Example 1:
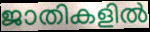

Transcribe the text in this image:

ജാതികളിൽ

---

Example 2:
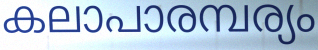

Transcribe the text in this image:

കലാപാരമ്പര്യം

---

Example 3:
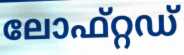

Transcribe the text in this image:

ലോഫ്റ്റഡ്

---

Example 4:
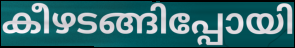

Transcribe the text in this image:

കീഴടങ്ങിപ്പോയി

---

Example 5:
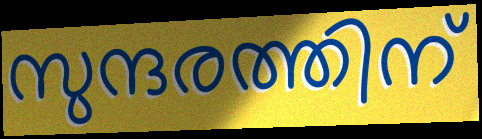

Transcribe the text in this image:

സുന്ദരത്തിന്